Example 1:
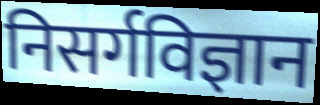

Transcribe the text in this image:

निसर्गविज्ञान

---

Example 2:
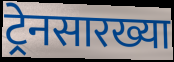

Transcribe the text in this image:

ट्रेनसारख्या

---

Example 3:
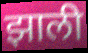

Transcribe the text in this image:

झाली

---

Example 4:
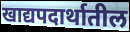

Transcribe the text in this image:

खाद्यपदार्थातील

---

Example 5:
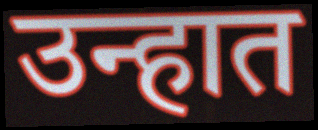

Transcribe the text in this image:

उन्हात